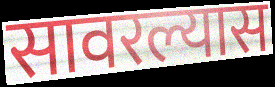
सावरल्यास